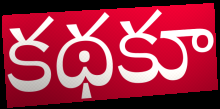
కథకూ